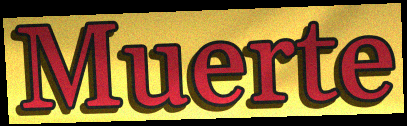
Muerte